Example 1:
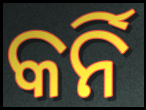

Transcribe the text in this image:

କର୍ନି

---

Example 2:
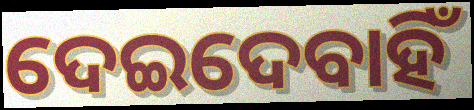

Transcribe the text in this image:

ଦେଇଦେବାହିଁ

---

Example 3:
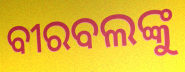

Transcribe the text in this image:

ବୀରବଲଙ୍କୁ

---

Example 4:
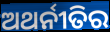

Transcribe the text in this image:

ଅଥର୍ନୀତିର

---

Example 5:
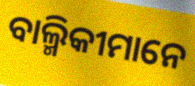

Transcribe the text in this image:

ବାଲ୍ମିକୀମାନେ